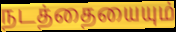
நடத்தையையும்